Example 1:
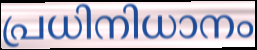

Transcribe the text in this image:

പ്രധിനിധാനം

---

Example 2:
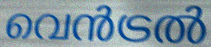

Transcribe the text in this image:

വെൻട്രൽ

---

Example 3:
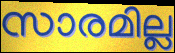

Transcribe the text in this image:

സാരമില്ല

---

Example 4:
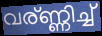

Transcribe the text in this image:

വര്ണ്ണിച്ച്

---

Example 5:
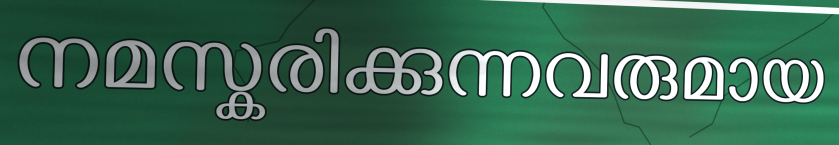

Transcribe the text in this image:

നമസ്കരിക്കുന്നവരുമായ